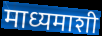
माध्यमाशी